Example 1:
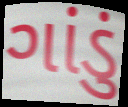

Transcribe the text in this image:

ગાંડું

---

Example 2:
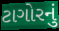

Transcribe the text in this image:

ટાગોરનું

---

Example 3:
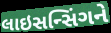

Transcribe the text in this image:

લાઇસન્સિંગને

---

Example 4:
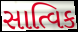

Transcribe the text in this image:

સાત્વિક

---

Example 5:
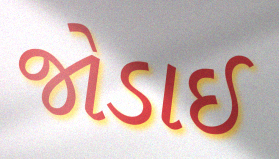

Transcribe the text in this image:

જોડાઈ